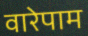
वारेपाम